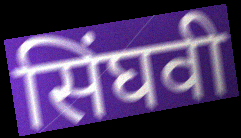
सिंघवी